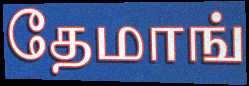
தேமாங்